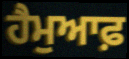
ਹੈਮੁਆਫ਼